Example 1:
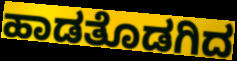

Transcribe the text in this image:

ಹಾಡತೊಡಗಿದ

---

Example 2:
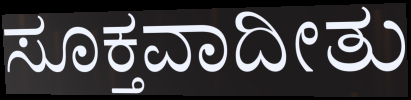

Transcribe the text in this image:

ಸೂಕ್ತವಾದೀತು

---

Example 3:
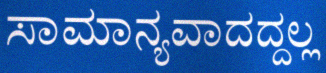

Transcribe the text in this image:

ಸಾಮಾನ್ಯವಾದದ್ದಲ್ಲ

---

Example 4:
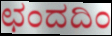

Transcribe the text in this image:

ಛಂದದಿಂ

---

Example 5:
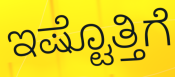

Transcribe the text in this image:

ಇಷ್ಟೊತ್ತಿಗೆ